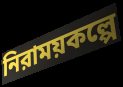
নিরাময়কল্পে